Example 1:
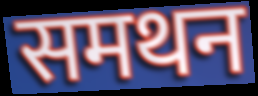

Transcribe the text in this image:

समथन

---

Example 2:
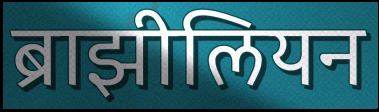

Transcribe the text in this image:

ब्राझीलियन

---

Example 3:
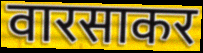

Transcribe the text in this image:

वारसाकर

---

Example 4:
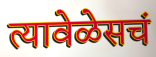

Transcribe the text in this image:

त्यावेळेसचं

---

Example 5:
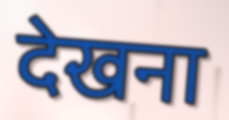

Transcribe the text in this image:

देखना